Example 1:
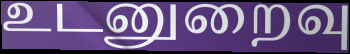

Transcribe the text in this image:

உடனுறைவு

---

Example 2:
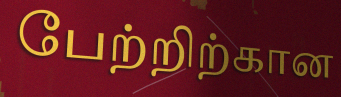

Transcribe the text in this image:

பேற்றிற்கான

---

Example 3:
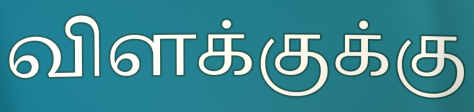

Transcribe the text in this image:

விளக்குக்கு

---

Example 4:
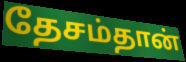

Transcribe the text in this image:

தேசம்தான்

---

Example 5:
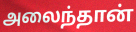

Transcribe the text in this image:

அலைந்தான்